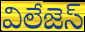
విలేజెస్